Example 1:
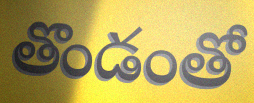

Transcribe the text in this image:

తొండంతో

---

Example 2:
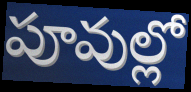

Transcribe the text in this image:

పూవుల్లో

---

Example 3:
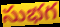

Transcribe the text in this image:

సుభగ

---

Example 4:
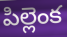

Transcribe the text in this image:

పిల్లెంక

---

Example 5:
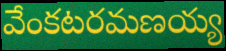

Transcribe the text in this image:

వేంకటరమణయ్య